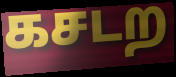
கசடற